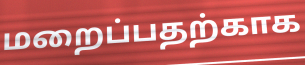
மறைப்பதற்காக